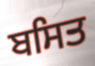
ਬਸਿਤ